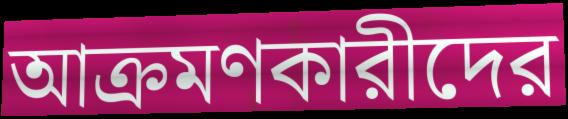
আক্রমণকারীদের